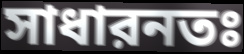
সাধারনতঃ